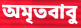
অমৃতবাবু